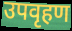
उपवृहण